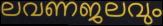
ലവണജലവും